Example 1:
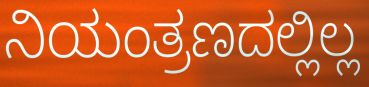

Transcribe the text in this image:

ನಿಯಂತ್ರಣದಲ್ಲಿಲ್ಲ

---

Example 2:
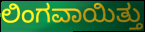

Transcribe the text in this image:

ಲಿಂಗವಾಯಿತ್ತು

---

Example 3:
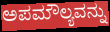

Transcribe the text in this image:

ಅಪಮೌಲ್ಯವನ್ನು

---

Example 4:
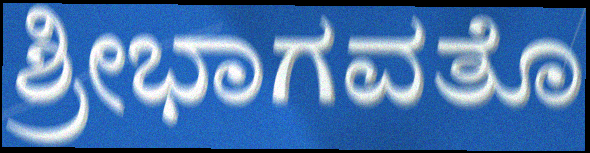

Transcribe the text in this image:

ಶ್ರೀಭಾಗವತೊ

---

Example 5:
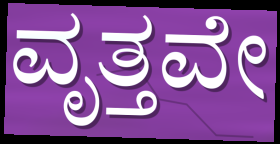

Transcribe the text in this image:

ವೃತ್ತವೇ